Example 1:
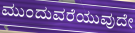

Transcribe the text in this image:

ಮುಂದುವರೆಯುವುದೇ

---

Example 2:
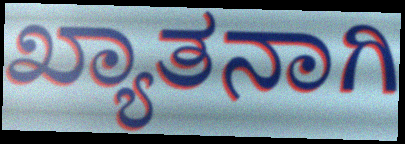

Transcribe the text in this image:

ಖ್ಯಾತನಾಗಿ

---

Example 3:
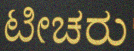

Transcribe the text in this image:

ಟೀಚರು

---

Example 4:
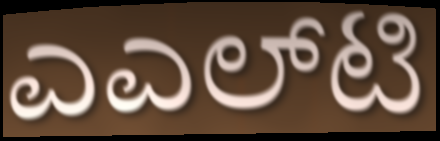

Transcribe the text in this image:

ಎಎಲ್‌ಟಿ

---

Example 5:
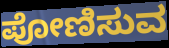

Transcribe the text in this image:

ಪೋಣಿಸುವ